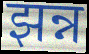
झन्न